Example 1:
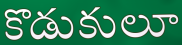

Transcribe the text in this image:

కొడుకులూ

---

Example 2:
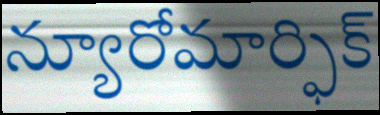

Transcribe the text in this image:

న్యూరోమార్ఫిక్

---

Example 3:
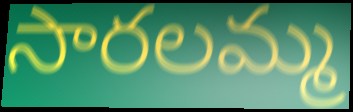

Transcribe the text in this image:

సారలమ్మ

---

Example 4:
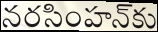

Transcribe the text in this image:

నరసింహన్‌కు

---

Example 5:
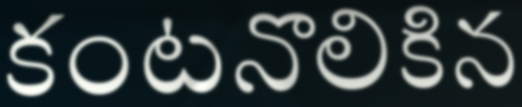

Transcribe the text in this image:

కంటనొలికిన